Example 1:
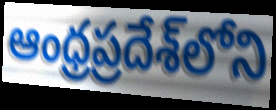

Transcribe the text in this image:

ఆంధ్రప్రదేశ్‌లోని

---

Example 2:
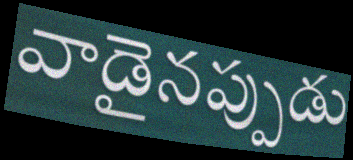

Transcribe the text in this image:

వాడైనప్పుడు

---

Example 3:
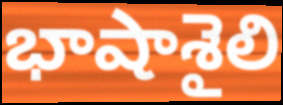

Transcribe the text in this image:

భాషాశైలి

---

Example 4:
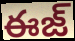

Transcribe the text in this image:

ఈజ్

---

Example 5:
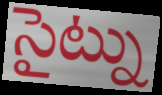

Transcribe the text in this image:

సైట్ను